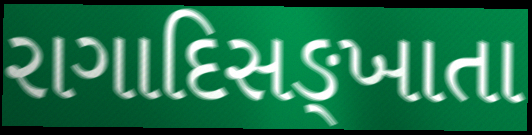
રાગાદિસઙ્ખાતા